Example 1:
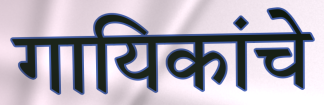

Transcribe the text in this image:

गायिकांचे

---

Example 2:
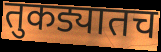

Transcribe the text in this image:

तुकड्यातच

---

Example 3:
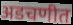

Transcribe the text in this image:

अडचणीत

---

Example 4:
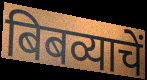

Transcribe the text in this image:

बिबव्याचें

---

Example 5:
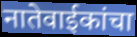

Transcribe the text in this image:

नातेवाईकांचा